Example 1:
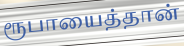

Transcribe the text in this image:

ரூபாயைத்தான்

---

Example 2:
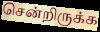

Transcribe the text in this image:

சென்றிருக்க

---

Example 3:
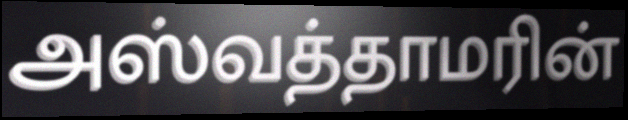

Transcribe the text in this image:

அஸ்வத்தாமரின்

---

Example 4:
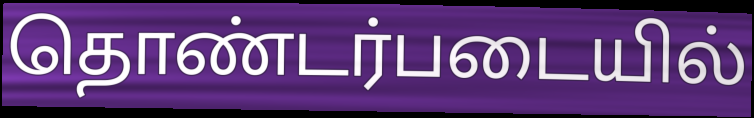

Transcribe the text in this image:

தொண்டர்படையில்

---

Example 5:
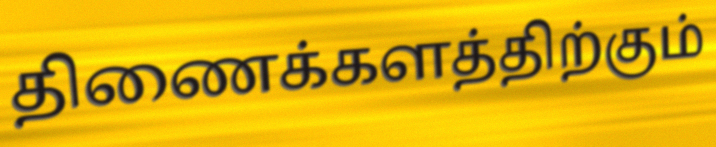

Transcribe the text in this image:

திணைக்களத்திற்கும்